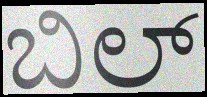
ಬಿಲ್